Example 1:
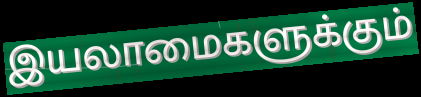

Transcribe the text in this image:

இயலாமைகளுக்கும்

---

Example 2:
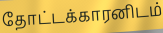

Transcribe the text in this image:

தோட்டக்காரனிடம்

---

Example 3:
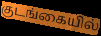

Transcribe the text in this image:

குடங்கையில்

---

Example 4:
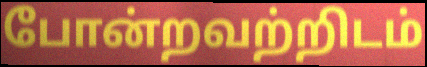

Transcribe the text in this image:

போன்றவற்றிடம்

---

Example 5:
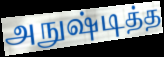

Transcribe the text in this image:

அநுஷ்டித்த